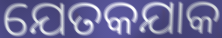
ଯେତକଯାକ